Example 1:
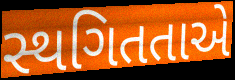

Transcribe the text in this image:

સ્થગિતતાએ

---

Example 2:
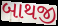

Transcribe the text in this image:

બાથજી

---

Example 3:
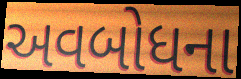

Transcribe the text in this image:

અવબોધના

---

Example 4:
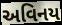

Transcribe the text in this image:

અવિનય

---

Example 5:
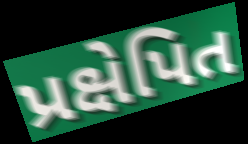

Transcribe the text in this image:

પ્રક્ષેપિત